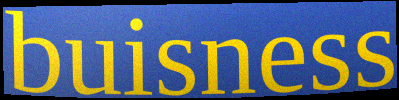
buisness